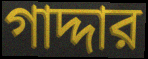
গাদ্দার